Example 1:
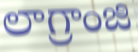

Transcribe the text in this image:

లాగ్రాంజి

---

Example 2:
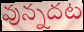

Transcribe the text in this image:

వున్నదట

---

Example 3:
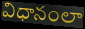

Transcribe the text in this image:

విధానంలా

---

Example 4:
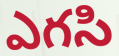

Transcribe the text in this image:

ఎగసి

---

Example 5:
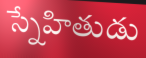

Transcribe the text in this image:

స్నేహితుడు